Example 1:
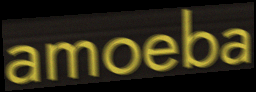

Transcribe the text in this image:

amoeba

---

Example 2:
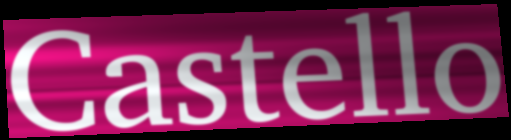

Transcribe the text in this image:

Castello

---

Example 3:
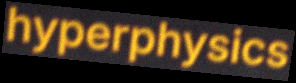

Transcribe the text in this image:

hyperphysics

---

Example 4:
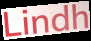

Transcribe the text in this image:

Lindh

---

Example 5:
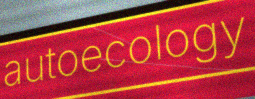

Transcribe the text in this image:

autoecology